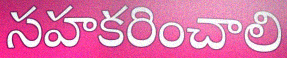
సహకరించాలి